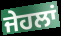
ਜੇਹਲਾਂ